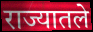
राज्यातले